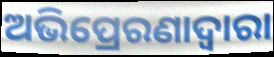
ଅଭିପ୍ରେରଣାଦ୍ୱାରା